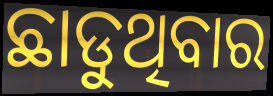
ଛାଡୁଥିବାର